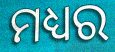
ମଧ୍ଯର